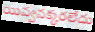
యివ్వనక్కరలేదు